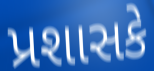
પ્રશાસકે